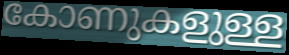
കോണുകളുള്ള